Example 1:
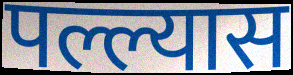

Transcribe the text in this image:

पल्ल्यास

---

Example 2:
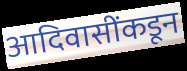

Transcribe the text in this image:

आदिवासींकडून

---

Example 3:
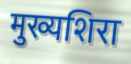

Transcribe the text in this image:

मुख्यशिरा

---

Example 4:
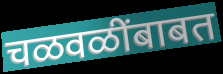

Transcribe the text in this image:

चळवळींबाबत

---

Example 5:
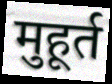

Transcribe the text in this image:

मुहूर्त